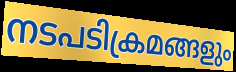
നടപടിക്രമങ്ങളും